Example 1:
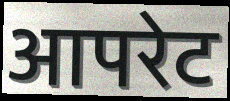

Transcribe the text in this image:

आपरेट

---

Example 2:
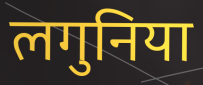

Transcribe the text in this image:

लगुनिया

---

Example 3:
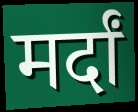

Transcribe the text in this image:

मर्दां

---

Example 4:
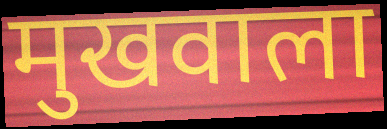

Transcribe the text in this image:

मुखवाला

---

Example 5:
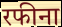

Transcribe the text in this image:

रफीना